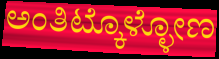
ಅಂತಿಟ್ಕೊಳ್ಳೋಣ